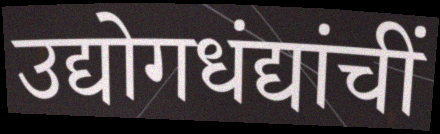
उद्योगधंद्यांचीं